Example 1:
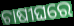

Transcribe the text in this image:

ଚାଷୀଘରେ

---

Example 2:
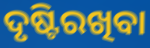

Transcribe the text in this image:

ଦୃଷ୍ଟିରଖିବା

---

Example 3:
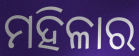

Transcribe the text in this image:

ମହିଳାର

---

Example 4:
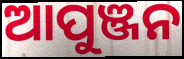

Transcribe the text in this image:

ଆପୁଞ୍ଜନ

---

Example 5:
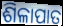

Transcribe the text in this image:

ଶିଳାପାତ